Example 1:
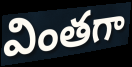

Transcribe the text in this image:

వింతగా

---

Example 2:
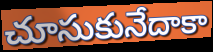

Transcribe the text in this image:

చూసుకునేదాకా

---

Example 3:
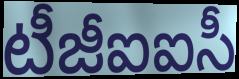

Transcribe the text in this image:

టీజీఐఐసీ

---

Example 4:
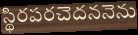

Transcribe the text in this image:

స్థిరపరచెదననెను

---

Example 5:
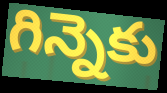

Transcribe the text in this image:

గిన్నెకు